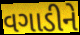
વગાડીને